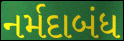
નર્મદાબંધ